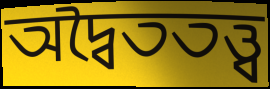
অদ্বৈততত্ত্ব